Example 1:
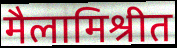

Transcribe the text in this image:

मैलामिश्रीत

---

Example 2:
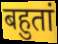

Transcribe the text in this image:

बहुतां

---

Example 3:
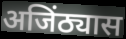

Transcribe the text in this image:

अजिंठ्यास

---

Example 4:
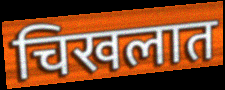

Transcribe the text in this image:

चिखलात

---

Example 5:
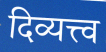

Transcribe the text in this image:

दिव्यत्त्व